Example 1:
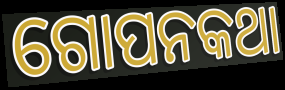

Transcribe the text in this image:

ଗୋପନକଥା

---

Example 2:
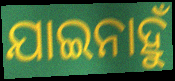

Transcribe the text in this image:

ଯାଇନାହୁଁ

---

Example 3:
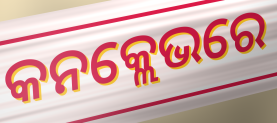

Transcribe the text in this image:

କନକ୍ଲେଭରେ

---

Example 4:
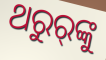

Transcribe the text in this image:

ଥରୁର୍‌ଙ୍କୁ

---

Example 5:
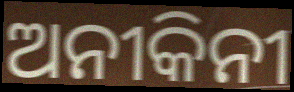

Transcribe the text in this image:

ଅନୀକିନୀ